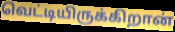
வெட்டியிருக்கிறான்